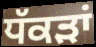
ਧੱਕੜਾਂ